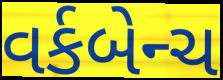
વર્કબેન્ચ